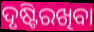
ଦୃଷ୍ଟିରଖିବା